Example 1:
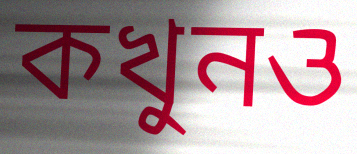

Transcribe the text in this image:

কখুনও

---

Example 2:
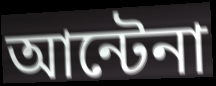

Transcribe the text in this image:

আন্টেনা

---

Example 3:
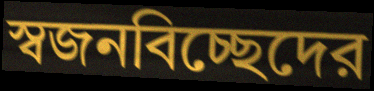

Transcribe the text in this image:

স্বজনবিচ্ছেদের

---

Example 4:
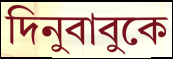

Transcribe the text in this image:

দিনুবাবুকে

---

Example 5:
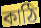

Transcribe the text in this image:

কাঠি